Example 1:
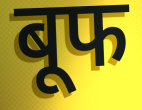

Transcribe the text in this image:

बूफ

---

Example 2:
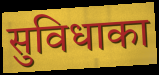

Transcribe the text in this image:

सुविधाका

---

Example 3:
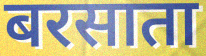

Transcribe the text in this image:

बरसाता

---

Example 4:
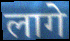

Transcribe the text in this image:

लागे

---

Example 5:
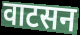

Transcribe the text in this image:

वाटसन